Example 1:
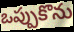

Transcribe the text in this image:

ఒప్పుకొను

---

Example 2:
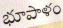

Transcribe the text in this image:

భూపాళం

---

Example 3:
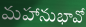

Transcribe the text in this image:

మహానుభావో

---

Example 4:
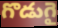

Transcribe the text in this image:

గొడుగై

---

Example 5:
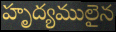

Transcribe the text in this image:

హృద్యములైన